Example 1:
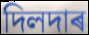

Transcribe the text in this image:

দিলদাৰ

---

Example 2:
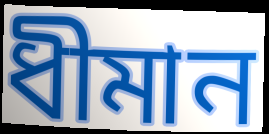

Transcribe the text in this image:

ধীমান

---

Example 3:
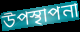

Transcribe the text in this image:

উপস্থাপনা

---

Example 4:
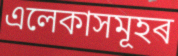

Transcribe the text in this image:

এলেকাসমূহৰ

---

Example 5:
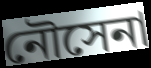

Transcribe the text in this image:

নৌসেনা